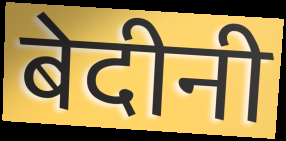
बेदीनी